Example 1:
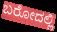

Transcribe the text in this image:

ಬರೋದಲ್ಲಿ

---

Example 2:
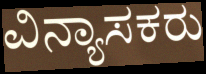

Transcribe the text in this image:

ವಿನ್ಯಾಸಕರು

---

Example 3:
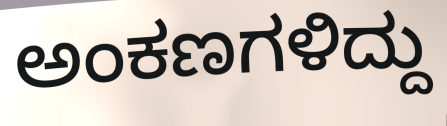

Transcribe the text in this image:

ಅಂಕಣಗಳಿದ್ದು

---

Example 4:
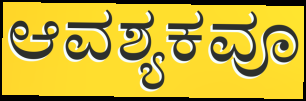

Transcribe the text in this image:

ಆವಶ್ಯಕವೂ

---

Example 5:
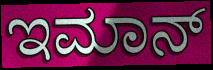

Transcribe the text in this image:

ಇಮಾನ್